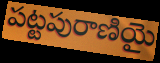
పట్టపురాణియై